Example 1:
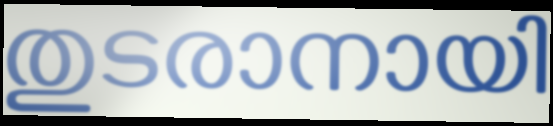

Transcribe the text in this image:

തുടരാനായി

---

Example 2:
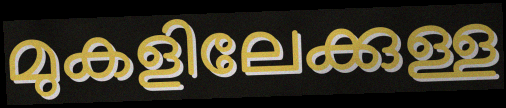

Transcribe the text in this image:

മുകളിലേക്കുള്ള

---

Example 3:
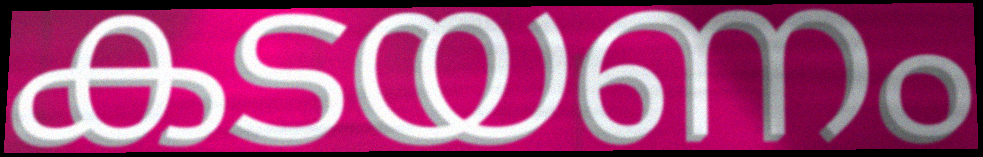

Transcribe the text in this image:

കടയണം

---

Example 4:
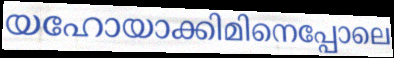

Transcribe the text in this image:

യഹോയാക്കിമിനെപ്പോലെ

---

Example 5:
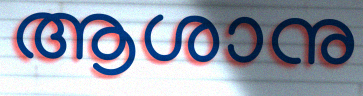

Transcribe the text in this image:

ആശാനു